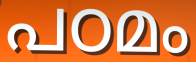
പഠമം